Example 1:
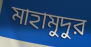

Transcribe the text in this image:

মাহামুদুর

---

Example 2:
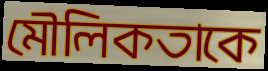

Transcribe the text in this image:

মৌলিকতাকে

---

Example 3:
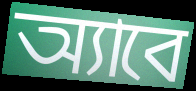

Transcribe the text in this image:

অ্যাবে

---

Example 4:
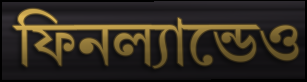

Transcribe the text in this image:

ফিনল্যান্ডেও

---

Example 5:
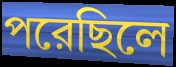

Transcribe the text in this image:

পরেছিলে